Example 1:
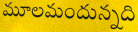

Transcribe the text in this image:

మూలమందున్నది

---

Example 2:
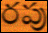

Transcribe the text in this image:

రపు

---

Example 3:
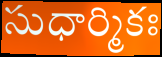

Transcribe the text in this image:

సుధార్మికః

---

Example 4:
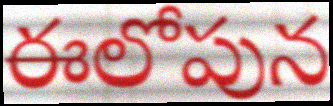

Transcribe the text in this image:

ఈలోపున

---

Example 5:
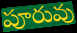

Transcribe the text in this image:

పూరువు